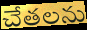
చేతలను